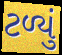
ટળ્યું